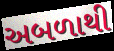
અબળાથી